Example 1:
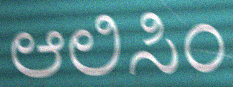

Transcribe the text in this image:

ಆಲಿಸಿಂ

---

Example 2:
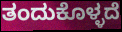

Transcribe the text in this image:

ತಂದುಕೊಳ್ಳದೆ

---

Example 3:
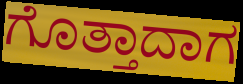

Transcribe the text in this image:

ಗೊತ್ತಾದಾಗ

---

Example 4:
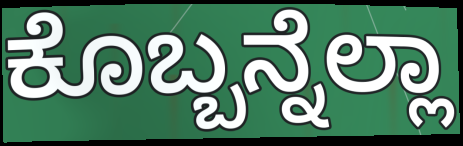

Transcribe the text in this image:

ಕೊಬ್ಬನ್ನೆಲ್ಲಾ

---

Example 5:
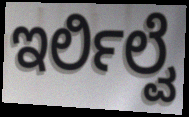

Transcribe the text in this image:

ಇರ್ಲಿಲ್ವೆ